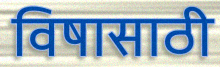
विषासाठी